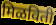
मिळविती